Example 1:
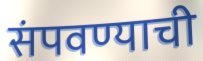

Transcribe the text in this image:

संपवण्याची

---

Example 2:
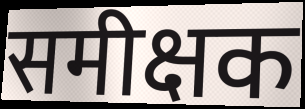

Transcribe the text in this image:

समीक्षक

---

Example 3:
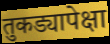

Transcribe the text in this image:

तुकड्यापेक्षा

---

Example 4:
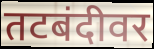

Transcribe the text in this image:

तटबंदीवर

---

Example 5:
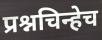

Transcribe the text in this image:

प्रश्नचिन्हेच